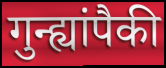
गुन्ह्यांपैकी